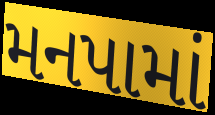
મનપામાં